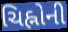
ચિહ્નોની